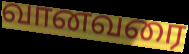
வானவரை